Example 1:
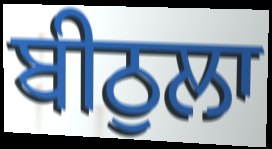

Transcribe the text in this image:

ਬੀਠੁਲਾ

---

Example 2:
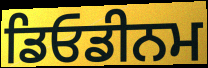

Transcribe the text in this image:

ਡਿਓਡੀਨਮ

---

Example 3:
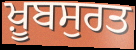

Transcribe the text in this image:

ਖ਼ੂਬਸੁਰਤ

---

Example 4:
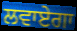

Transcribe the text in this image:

ਲਵਾਏਗਾ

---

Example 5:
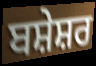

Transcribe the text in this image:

ਬਸ਼ੇਸ਼ਰ